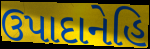
ઉપાદાનેહિ